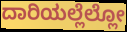
ದಾರಿಯಲ್ಲೆಲ್ಲೋ